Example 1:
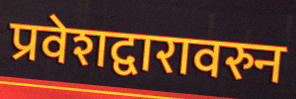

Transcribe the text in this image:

प्रवेशद्वारावरुन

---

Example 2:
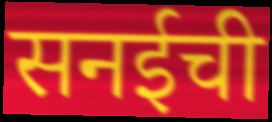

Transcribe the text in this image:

सनईची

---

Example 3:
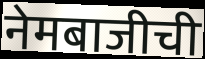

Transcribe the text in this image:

नेमबाजीची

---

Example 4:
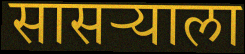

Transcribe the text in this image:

सासऱ्याला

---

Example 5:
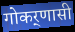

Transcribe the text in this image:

गोकर्णासी